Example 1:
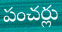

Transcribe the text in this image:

పంచర్లు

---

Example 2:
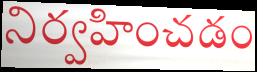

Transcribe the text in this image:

నిర్వహించడం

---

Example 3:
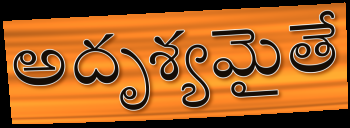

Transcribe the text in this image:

అదృశ్యమైతే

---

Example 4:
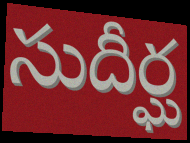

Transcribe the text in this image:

సుదీర్ఘ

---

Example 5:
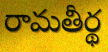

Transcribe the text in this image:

రామతీర్థ